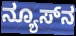
ನ್ಯೂಸ್‌ನ